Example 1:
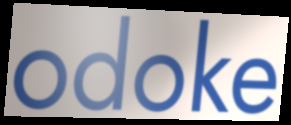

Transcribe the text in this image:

odoke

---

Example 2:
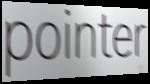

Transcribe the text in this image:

pointer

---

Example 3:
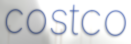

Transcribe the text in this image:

costco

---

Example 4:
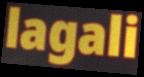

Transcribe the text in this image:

lagali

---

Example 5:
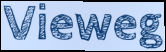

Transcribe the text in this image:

Vieweg